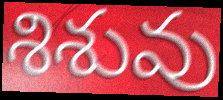
శిశువు